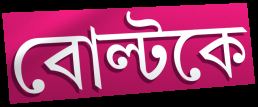
বোল্টকে